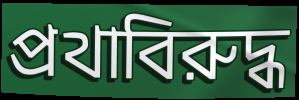
প্রথাবিরুদ্ধ